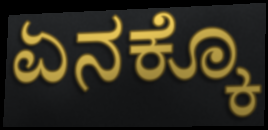
ಏನಕ್ಕೊ